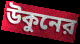
উকুনের